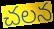
చలన